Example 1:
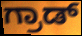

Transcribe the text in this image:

ಗ್ರಾಡ್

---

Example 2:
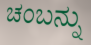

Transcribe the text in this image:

ಚಂಬನ್ನು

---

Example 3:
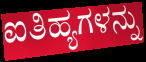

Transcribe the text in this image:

ಐತಿಹ್ಯಗಳನ್ನು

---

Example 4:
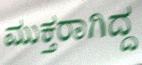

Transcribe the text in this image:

ಮುಕ್ತರಾಗಿದ್ದ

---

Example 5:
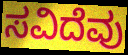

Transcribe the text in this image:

ಸವಿದೆವು